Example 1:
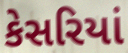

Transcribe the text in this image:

કેસરિયાં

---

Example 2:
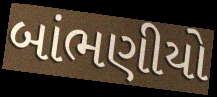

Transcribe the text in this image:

બાંભણીયો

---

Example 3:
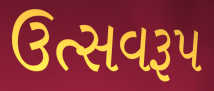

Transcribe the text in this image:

ઉત્સવરૂપ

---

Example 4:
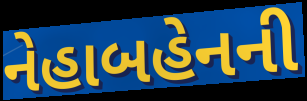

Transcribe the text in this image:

નેહાબહેનની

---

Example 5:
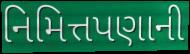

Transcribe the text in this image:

નિમિત્તપણાની